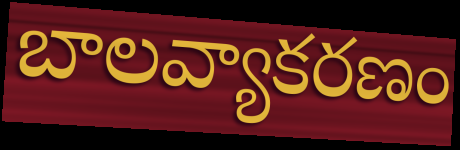
బాలవ్యాకరణం